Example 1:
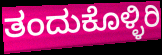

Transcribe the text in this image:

ತಂದುಕೊಳ್ಳಿರಿ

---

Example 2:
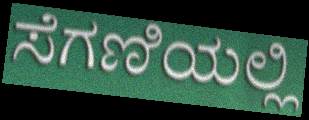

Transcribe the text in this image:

ಸೆಗಣಿಯಲ್ಲಿ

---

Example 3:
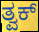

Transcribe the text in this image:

ತ್ವಕ್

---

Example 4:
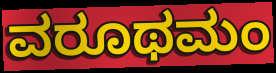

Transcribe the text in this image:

ವರೂಥಮಂ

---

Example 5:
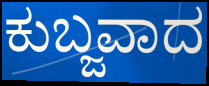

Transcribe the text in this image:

ಕುಬ್ಜವಾದ